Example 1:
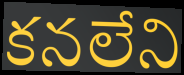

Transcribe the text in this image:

కనలేని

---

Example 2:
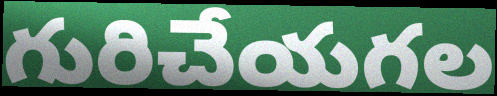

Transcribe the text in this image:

గురిచేయగల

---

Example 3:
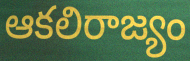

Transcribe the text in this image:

ఆకలిరాజ్యం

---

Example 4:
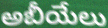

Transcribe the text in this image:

అబీయేలు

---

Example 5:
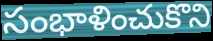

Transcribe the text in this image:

సంభాళించుకొని